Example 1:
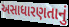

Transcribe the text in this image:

અસાધારણતાનું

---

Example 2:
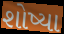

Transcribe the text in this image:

શોષ્યા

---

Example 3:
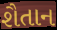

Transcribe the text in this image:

શૈતાન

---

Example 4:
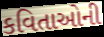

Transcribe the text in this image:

કવિતાઓની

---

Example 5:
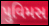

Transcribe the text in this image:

પુવિમસ